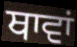
ਥਾਵਾਂ